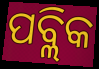
ପବ୍ଲିକ